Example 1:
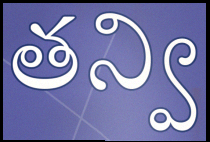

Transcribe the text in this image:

తన్వి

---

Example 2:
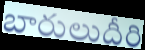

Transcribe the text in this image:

బారులుదీరి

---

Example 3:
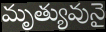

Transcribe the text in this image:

మృత్యువునై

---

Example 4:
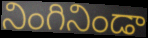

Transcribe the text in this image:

నింగినిండా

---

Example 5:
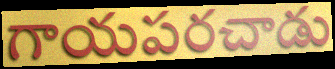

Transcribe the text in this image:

గాయపరచాడు